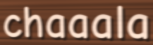
chaaala